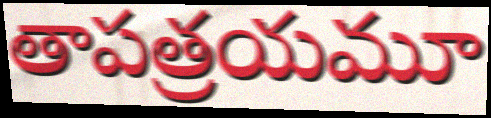
తాపత్రయమూ